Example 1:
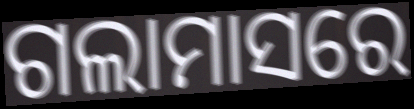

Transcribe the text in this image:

ଗଲାମାସରେ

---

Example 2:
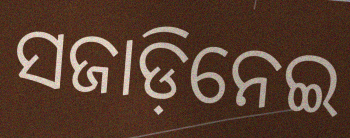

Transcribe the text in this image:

ସଜାଡ଼ିନେଇ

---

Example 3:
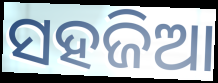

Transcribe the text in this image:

ସହଜିଆ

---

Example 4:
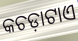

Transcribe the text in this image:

କଚଡ଼ାଟାଏ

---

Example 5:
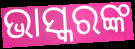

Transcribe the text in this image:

ଭାସ୍କରଙ୍କ